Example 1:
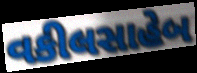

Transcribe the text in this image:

વકીલસાહેબ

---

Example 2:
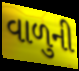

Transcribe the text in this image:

વાળુની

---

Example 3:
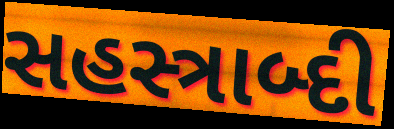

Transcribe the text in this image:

સહસ્ત્રાબ્દી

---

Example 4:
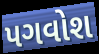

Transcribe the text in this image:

પગવોશ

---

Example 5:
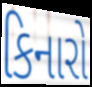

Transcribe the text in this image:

કિનારો